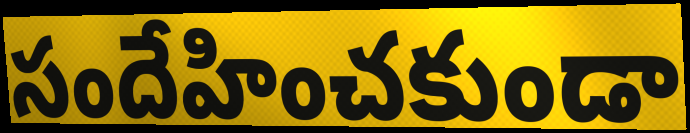
సందేహించకుండా